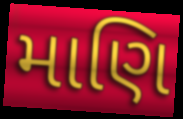
માણિ